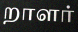
றாளர்